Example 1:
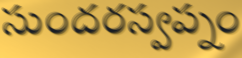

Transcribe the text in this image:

సుందరస్వప్నం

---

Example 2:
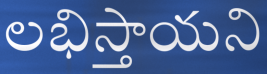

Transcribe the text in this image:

లభిస్తాయని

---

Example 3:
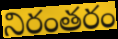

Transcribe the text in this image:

నిరంతరం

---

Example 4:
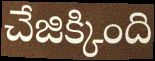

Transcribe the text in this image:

చేజిక్కింది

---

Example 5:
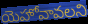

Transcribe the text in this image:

యెహోవావలని